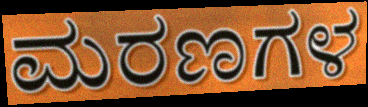
ಮರಣಗಳ